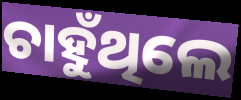
ଚାହୁଁଥିଲେ